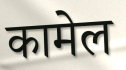
कामेल